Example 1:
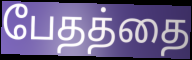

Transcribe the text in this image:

பேதத்தை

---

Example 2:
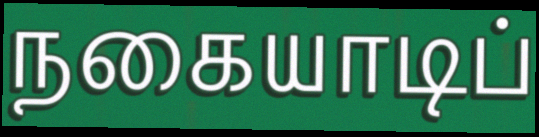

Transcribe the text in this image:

நகையாடிப்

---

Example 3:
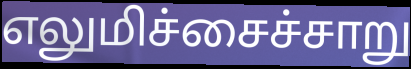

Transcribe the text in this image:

எலுமிச்சைச்சாறு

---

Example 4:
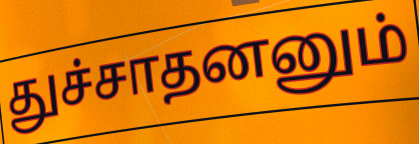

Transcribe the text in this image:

துச்சாதனனும்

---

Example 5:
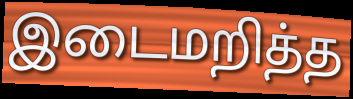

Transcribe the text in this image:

இடைமறித்த